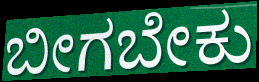
ಬೀಗಬೇಕು